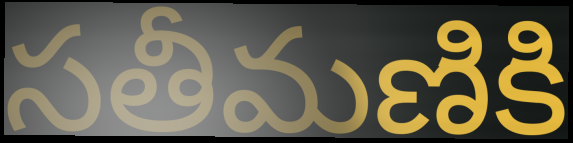
సతీమణికి